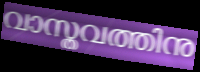
വാസ്തവത്തിനു